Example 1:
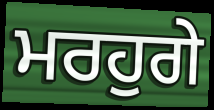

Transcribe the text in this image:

ਮਰਹੁਗੇ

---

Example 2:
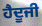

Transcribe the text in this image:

ਹੈਦੂਜੀ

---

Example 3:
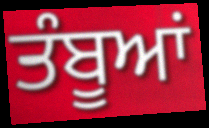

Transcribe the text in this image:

ਤੰਬੂਆਂ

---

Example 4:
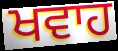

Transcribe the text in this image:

ਖਵਾਹ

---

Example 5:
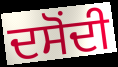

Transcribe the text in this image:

ਦਸੋਂਦੀ